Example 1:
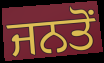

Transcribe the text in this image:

ਜਨਤੋਂ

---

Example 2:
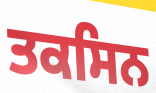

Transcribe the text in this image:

ਤਕਸਿਨ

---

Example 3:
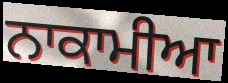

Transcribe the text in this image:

ਨਾਕਾਮੀਆ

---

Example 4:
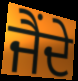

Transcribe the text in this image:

ਜੈਂਦੇ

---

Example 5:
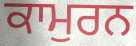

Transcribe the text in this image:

ਕਾਮੁਰਨ